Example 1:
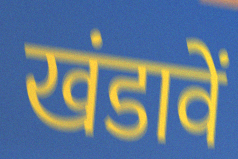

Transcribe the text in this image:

खंडावें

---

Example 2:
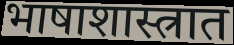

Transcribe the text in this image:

भाषाशास्त्रात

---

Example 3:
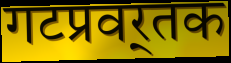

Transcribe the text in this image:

गटप्रवर्तक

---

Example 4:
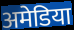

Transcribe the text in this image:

अमेडिया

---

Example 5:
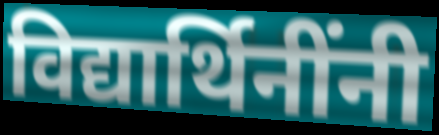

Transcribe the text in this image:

विद्यार्थिनींनी